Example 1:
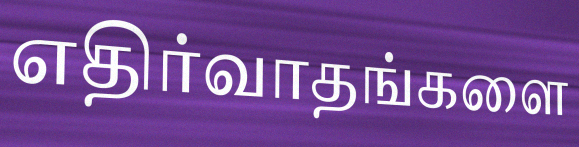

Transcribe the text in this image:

எதிர்வாதங்களை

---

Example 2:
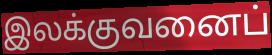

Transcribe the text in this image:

இலக்குவனைப்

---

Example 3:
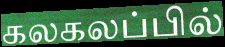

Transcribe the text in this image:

கலகலப்பில்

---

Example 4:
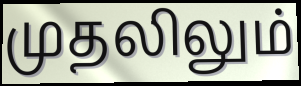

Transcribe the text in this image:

முதலிலும்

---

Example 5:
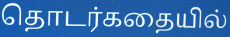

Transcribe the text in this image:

தொடர்கதையில்